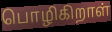
பொழிகிறாள்